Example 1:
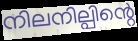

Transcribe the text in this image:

നിലനില്പിന്റെ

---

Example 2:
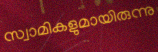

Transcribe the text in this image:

സ്വാമികളുമായിരുന്നു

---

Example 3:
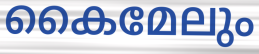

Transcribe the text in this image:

കൈമേലും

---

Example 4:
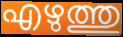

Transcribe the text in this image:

എഴുത്തു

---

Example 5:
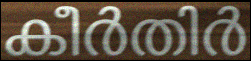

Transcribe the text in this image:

കീർതിർ